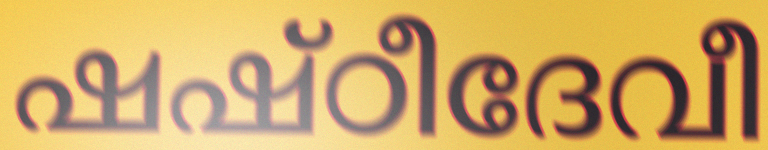
ഷഷ്ഠീദേവീ